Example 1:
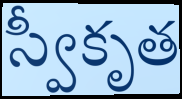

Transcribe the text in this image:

స్వీకృత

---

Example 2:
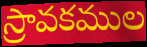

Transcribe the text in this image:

స్రావకముల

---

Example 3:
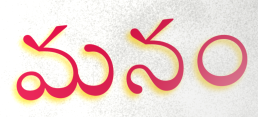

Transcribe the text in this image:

మనం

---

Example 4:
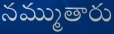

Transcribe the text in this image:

నమ్ముతారు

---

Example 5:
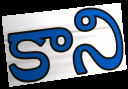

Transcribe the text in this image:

కాని